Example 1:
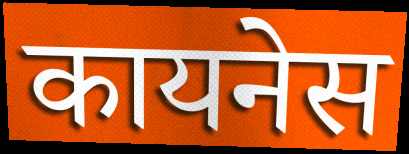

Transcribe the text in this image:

कायनेस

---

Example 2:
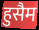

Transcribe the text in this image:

हुसैम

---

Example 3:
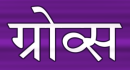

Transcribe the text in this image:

ग्रोव्स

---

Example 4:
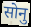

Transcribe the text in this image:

सोनु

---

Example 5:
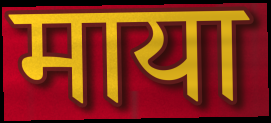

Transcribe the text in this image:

माया